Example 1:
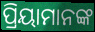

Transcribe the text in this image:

ପ୍ରିୟାମାନଙ୍କ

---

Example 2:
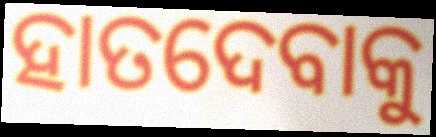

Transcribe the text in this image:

ହାତଦେବାକୁ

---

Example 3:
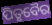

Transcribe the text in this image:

ପିତୃବୈର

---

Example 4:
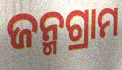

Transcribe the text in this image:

ଜନ୍ମଗ୍ରାମ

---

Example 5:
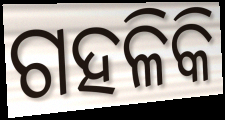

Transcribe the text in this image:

ଗହଳିକି